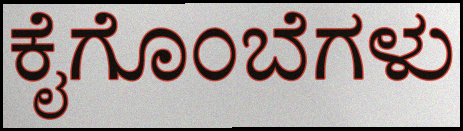
ಕೈಗೊಂಬೆಗಳು